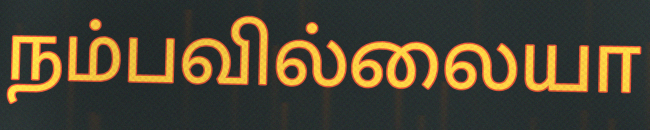
நம்பவில்லையா